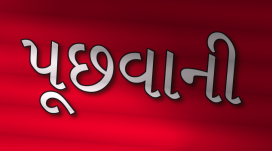
પૂછવાની